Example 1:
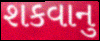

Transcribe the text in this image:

શકવાનુ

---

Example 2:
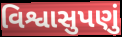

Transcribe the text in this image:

વિશ્વાસુપણું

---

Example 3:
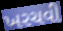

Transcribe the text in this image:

ખરચવી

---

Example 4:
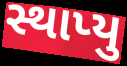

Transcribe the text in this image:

સ્થાપ્યુ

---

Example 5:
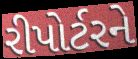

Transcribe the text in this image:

રીપોર્ટરને